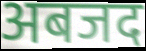
अबजद